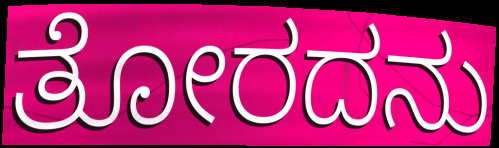
ತೋರದನು